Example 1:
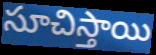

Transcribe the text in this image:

సూచిస్తాయి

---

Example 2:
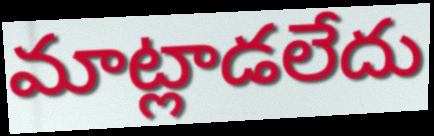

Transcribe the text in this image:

మాట్లాడలేదు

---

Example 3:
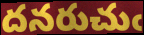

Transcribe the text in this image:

దనరుచుఁ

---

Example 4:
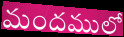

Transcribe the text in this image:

మందములో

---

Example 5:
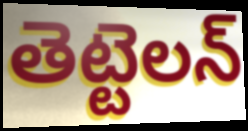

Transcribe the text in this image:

తెట్టెలన్